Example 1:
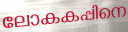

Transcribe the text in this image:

ലോകകപ്പിനെ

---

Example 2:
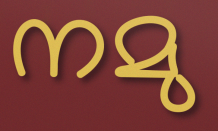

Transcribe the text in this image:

നമു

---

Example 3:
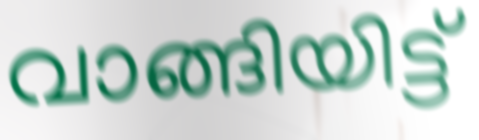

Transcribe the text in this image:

വാങ്ങിയിട്ട്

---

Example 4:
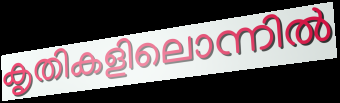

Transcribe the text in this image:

കൃതികളിലൊന്നിൽ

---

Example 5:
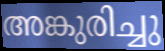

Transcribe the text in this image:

അങ്കുരിച്ചു